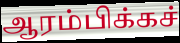
ஆரம்பிக்கச்